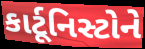
કાર્ટૂનિસ્ટોને